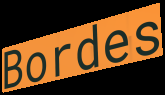
Bordes